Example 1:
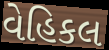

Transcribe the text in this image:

વેહિકલ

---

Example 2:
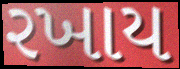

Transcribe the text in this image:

રખાય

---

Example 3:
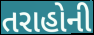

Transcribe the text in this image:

તરાહોની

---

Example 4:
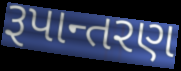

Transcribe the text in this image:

રૂપાન્તરણ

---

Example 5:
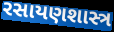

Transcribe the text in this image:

રસાયણશાસ્ત્ર